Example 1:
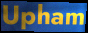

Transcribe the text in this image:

Upham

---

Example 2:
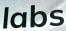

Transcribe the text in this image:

labs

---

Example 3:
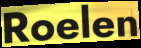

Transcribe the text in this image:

Roelen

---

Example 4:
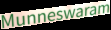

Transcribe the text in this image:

Munneswaram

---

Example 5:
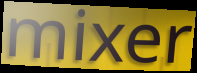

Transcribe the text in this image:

mixer